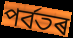
পৰ্বতৰ